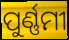
ପୁର୍ଣ୍ଣମୀ